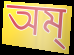
অম্